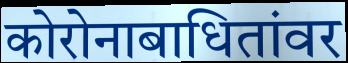
कोरोनाबाधितांवर